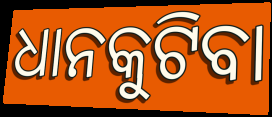
ଧାନକୁଟିବା